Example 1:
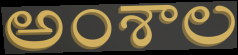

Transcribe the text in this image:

అంశాల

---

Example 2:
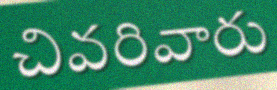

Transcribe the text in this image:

చివరివారు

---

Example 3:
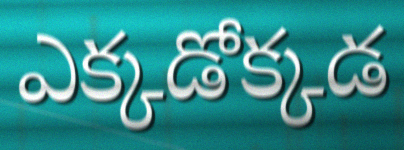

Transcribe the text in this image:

ఎక్కడోక్కడ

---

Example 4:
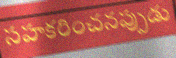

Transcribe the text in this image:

సహకరించనప్పుడు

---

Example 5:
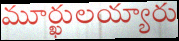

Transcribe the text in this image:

మూర్ఖులయ్యారు